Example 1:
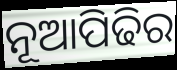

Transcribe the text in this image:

ନୂଆପିଢିର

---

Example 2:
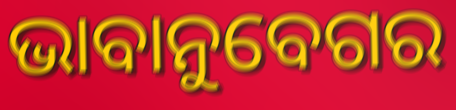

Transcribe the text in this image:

ଭାବାନୁବେଗର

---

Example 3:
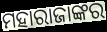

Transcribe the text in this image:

ମହାରାଜାଙ୍କର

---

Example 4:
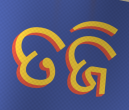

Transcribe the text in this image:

ତଜି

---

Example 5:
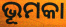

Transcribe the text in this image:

ଭୂମକା